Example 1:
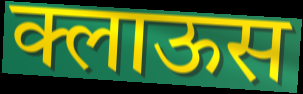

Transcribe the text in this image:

क्लाऊस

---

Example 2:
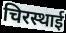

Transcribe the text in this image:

चिरस्थाई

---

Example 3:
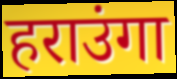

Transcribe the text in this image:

हराउंगा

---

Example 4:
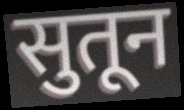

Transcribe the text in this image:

सुतून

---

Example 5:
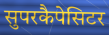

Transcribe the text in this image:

सुपरकैपेसिटर